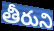
తీరుని